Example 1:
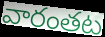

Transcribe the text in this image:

వారంతట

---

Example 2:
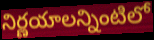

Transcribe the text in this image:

నిర్ణయాలన్నింటిలో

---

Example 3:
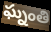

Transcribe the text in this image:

ఘ్నంతి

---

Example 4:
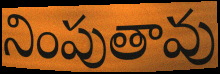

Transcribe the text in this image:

నింపుతావు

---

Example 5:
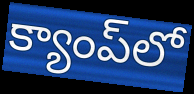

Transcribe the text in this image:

క్యాంప్‌లో